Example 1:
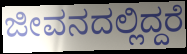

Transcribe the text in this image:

ಜೀವನದಲ್ಲಿದ್ದರೆ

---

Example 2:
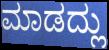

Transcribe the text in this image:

ಮಾಡದ್ಲು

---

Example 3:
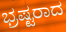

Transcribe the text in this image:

ಭ್ರಷ್ಟರಾದ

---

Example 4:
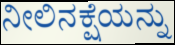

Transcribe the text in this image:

ನೀಲಿನಕ್ಷೆಯನ್ನು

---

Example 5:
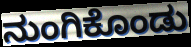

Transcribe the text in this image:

ನುಂಗಿಕೊಂಡು